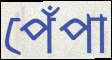
পেঁপা